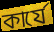
কার্যে